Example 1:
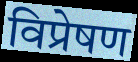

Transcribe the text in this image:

विप्रेषण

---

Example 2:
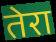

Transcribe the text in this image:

तेरा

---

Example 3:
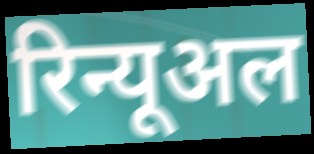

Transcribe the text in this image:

रिन्यूअल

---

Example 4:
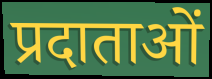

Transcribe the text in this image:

प्रदाताओं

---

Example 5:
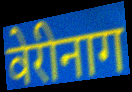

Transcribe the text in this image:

वेरीनाग